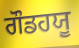
ਗੌਡਹਯੂ